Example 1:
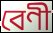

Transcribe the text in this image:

বেণী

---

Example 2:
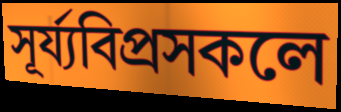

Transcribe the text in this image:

সূৰ্য্যবিপ্ৰসকলে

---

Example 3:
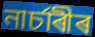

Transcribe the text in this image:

নাৰ্চাৰীৰ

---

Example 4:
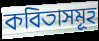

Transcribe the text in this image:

কবিতাসমূহ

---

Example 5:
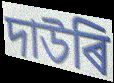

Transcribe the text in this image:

দাউৰি